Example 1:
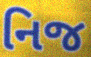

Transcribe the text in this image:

નિજ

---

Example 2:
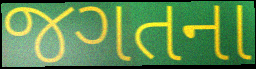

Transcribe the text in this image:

જગતના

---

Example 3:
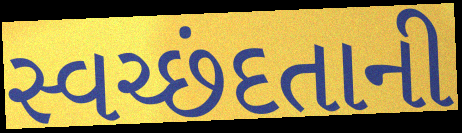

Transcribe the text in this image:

સ્વચ્છંદતાની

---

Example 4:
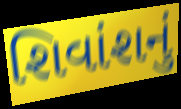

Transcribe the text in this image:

શિવાંશનું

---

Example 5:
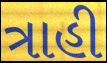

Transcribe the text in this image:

ત્રાહી